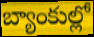
బ్యాంకుల్లో